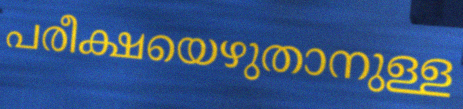
പരീക്ഷയെഴുതാനുള്ള